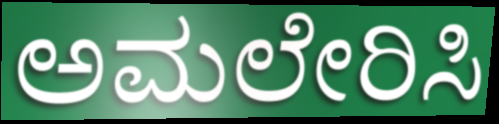
ಅಮಲೇರಿಸಿ